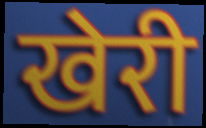
खेरी